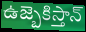
ఉజ్బెకిస్తాన్